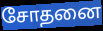
சோதனை